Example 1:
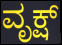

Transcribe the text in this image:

ವೃಕ್ಷ್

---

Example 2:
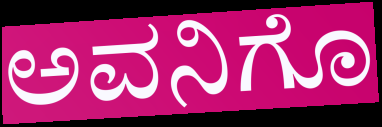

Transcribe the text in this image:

ಅವನಿಗೊ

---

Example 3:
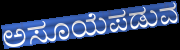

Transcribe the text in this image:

ಅಸೂಯೆಪಡುವ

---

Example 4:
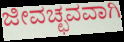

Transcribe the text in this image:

ಜೀವಚ್ಛವವಾಗಿ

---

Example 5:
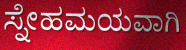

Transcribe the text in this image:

ಸ್ನೇಹಮಯವಾಗಿ